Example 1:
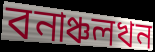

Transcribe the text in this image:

বনাঞ্চলখন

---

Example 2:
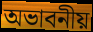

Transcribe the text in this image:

অভাবনীয়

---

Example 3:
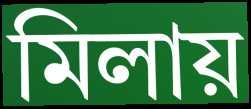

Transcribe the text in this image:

মিলায়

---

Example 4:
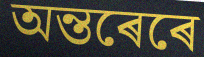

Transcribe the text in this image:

অন্তৰেৰে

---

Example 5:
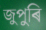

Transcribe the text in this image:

জুপুৰি